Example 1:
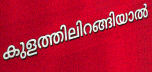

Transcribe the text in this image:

കുളത്തിലിറങ്ങിയാൽ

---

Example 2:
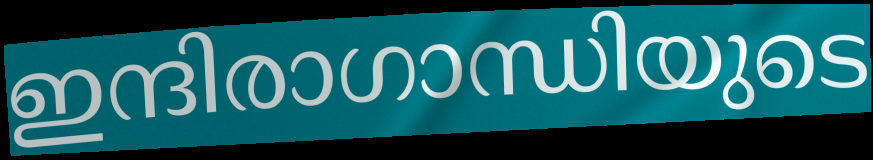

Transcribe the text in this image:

ഇന്ദിരാഗാന്ധിയുടെ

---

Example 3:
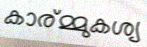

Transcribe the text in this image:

കാര്മ്മുകശ്യ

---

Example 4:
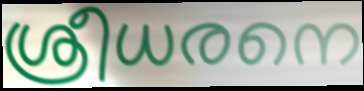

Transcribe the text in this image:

ശ്രീധരനെ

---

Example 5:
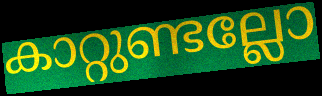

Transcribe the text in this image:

കാറ്റുണ്ടല്ലോ